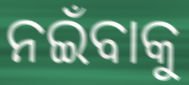
ନଇଁବାକୁ